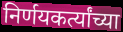
निर्णयकर्त्यांच्या